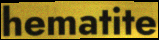
hematite